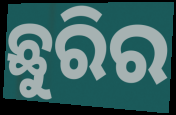
ଛୁରିର